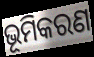
ଭୂମିକରଣ